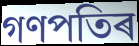
গণপতিৰ